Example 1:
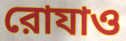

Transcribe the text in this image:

রোযাও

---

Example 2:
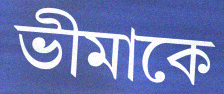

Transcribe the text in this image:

ভীমাকে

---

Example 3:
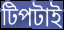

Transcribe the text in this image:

টিপটাই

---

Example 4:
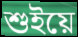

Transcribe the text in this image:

শুইয়ে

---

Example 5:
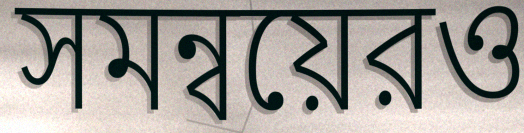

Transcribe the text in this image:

সমন্বয়েরও